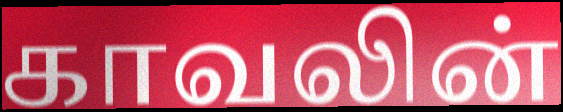
காவலின்